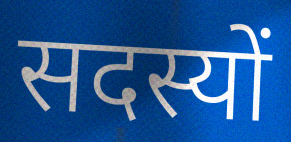
सदस्यों